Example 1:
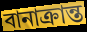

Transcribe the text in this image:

বানাক্ৰান্ত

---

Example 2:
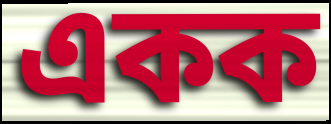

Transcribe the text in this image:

একক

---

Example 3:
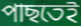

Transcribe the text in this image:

পাছতেই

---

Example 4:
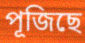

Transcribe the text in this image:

পূজিছে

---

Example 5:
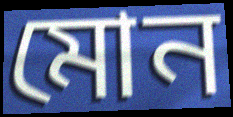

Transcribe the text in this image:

মোন